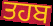
ਤਹਬ